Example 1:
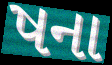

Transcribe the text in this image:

ષના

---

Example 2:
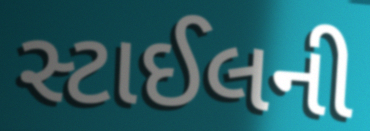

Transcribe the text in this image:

સ્ટાઈલની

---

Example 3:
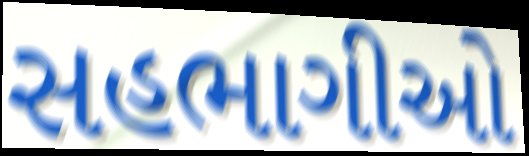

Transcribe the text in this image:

સહભાગીઓ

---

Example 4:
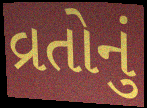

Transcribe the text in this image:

વ્રતોનું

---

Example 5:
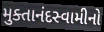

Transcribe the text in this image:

મુક્તાનંદસ્વામીનો